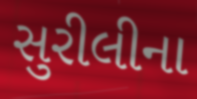
સુરીલીના